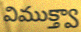
విముక్త్వా